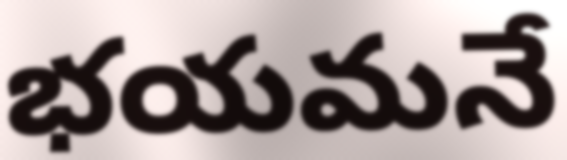
భయమనే